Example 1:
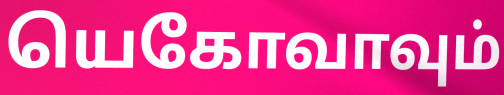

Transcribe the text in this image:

யெகோவாவும்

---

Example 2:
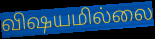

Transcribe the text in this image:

விஷயமில்லை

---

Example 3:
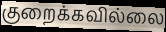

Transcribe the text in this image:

குறைக்கவில்லை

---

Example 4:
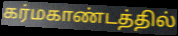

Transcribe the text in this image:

கர்மகாண்டத்தில்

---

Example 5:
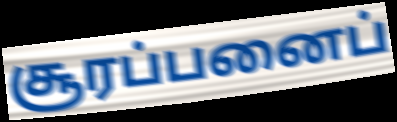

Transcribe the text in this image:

சூரப்பனைப்